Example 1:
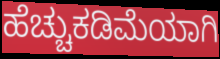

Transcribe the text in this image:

ಹೆಚ್ಚುಕಡಿಮೆಯಾಗಿ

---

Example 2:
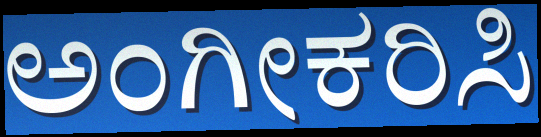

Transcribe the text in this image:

ಅಂಗೀಕರಿಸಿ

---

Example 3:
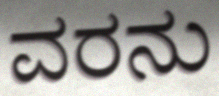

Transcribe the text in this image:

ವರನು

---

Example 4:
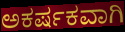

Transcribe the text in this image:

ಅಕರ್ಷಕವಾಗಿ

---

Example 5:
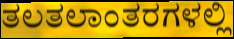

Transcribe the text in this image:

ತಲತಲಾಂತರಗಳಲ್ಲಿ